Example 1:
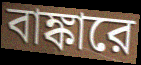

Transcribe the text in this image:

বাঙ্কারে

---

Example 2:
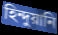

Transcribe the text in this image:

হিন্দুয়ানি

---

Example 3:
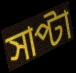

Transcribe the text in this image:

সাপ্টা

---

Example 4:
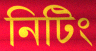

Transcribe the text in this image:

নিটিং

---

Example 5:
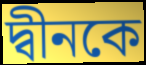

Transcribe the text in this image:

দ্বীনকে